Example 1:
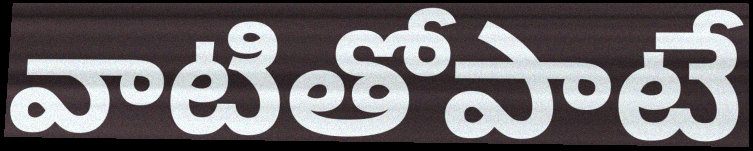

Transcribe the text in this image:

వాటితోపాటే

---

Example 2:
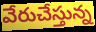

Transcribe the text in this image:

వేరుచేస్తున్న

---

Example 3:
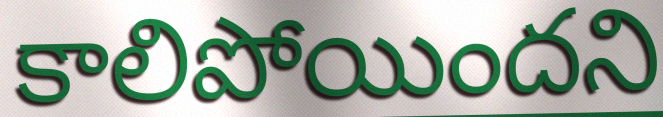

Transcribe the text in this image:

కాలిపోయిందని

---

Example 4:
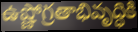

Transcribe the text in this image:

ఉష్ణోగ్రతాభివృద్ధికి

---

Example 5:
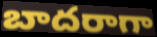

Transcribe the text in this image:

బాదరాగా